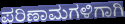
ಪರಿಣಾಮಗಳಿಗಾಗಿ